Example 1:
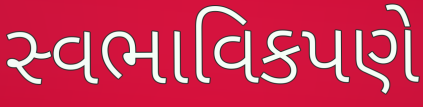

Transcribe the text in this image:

સ્વભાવિકપણે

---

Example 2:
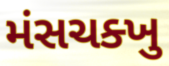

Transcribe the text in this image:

મંસચક્ખુ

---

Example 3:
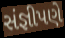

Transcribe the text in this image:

સંજ્ઞીપણે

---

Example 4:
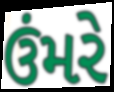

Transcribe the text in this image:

ઉંમરે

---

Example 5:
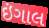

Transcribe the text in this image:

ઇંગાલ